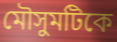
মৌসুমটিকে